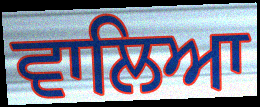
ਵਾਲਿਆ